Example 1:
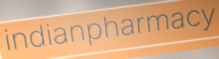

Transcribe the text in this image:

indianpharmacy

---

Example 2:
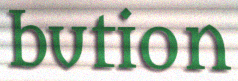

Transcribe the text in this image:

bution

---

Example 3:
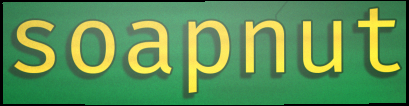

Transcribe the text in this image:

soapnut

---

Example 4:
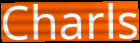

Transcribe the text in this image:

Charls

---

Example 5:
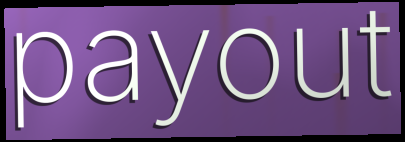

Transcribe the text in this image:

payout